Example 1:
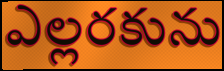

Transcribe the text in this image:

ఎల్లరకును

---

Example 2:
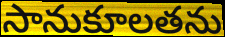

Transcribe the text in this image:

సానుకూలతను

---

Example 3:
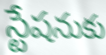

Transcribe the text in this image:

స్టేషనుకు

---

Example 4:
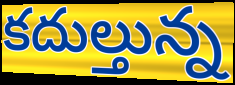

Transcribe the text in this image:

కదుల్తున్న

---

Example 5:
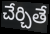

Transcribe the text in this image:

చేర్చితే